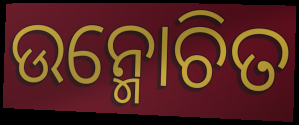
ଉନ୍ମୋଚିତ